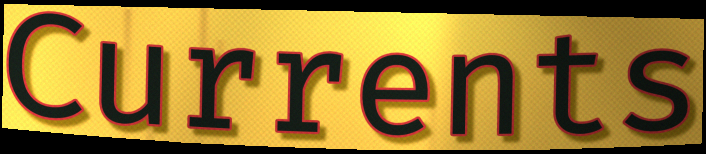
Currents